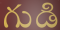
గుడి